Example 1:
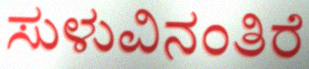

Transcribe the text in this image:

ಸುಳುವಿನಂತಿರೆ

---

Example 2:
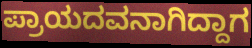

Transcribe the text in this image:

ಪ್ರಾಯದವನಾಗಿದ್ದಾಗ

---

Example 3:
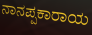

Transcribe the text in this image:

ನಾನಪ್ಪಕಾರಾಯ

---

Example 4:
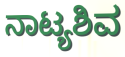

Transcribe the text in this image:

ನಾಟ್ಯಶಿವ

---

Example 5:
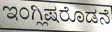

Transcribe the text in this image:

ಇಂಗ್ಲಿಷರೊಡನೆ